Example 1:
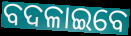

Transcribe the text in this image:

ବଦଳାଇବେ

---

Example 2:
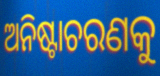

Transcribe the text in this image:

ଅନିଷ୍ଟାଚରଣକୁ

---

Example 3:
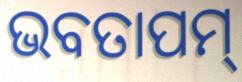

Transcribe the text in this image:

ଭବତାପମ୍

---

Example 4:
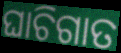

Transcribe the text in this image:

ଘାଚିଗାତ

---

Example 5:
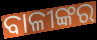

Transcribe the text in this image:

ବାଳୀଙ୍କର